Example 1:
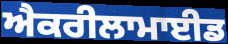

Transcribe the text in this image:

ਐਕਰੀਲਾਮਾਈਡ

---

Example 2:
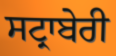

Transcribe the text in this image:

ਸਟ੍ਰਾਬੇਰੀ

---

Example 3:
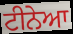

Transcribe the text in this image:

ਟੀਨੇਆ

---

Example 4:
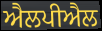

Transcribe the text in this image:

ਐਲਪੀਐਲ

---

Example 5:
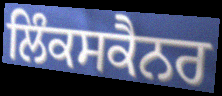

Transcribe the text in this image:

ਲਿੰਕਸਕੈਨਰ